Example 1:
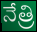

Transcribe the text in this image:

నేత్రి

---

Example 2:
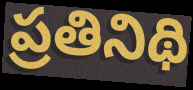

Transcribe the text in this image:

ప్రతినిథి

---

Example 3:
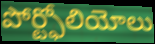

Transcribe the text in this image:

పోర్ట్ఫోలియోలు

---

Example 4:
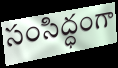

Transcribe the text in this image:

సంసిద్ధంగా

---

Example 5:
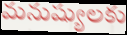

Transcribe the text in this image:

మనుష్యులకు